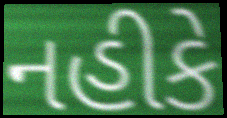
નહીકે